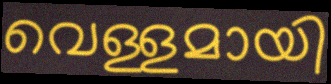
വെള്ളമായി